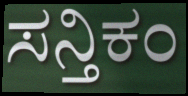
ಸನ್ತಿಕಂ